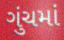
ગુંચમાં